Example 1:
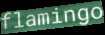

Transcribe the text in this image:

flamingo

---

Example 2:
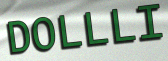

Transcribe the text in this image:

DOLLLI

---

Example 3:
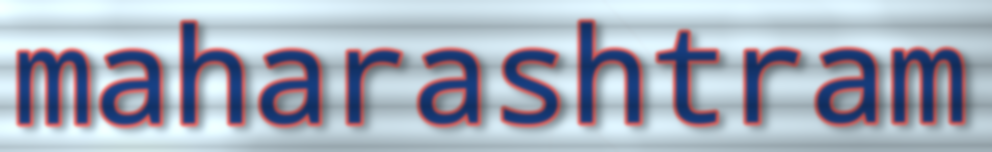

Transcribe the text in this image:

maharashtram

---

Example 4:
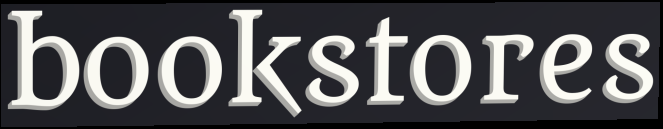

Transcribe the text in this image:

bookstores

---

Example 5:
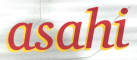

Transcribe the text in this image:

asahi